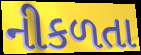
નીકળતા